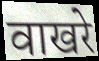
वाखरे